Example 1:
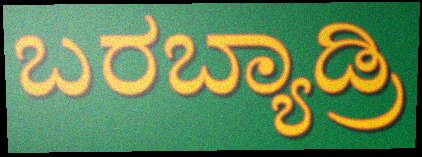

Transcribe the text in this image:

ಬರಬ್ಯಾಡ್ರಿ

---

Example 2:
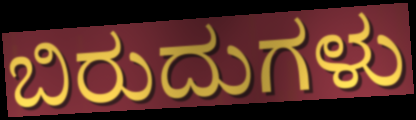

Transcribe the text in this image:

ಬಿರುದುಗಳು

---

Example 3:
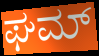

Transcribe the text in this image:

ಘಮ್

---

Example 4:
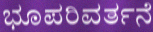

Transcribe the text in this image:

ಭೂಪರಿವರ್ತನೆ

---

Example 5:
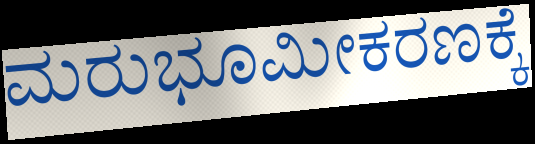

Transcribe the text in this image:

ಮರುಭೂಮೀಕರಣಕ್ಕೆ